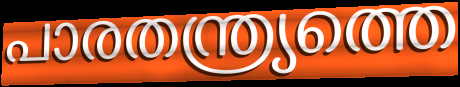
പാരതന്ത്ര്യത്തെ